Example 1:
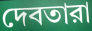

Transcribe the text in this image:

দেবতারা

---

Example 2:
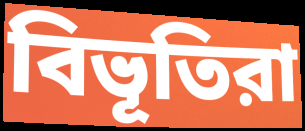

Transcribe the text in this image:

বিভূতিরা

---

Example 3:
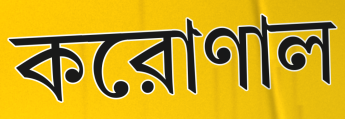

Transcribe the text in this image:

করোণাল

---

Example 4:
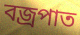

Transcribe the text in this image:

বজ্রপাত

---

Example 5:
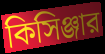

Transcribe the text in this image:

কিসিঞ্জার